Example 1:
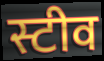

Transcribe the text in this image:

स्‍टीव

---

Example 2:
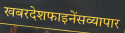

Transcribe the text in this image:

खबरदेशफाइनेंसव्यापार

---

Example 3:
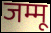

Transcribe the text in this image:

जम्मू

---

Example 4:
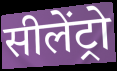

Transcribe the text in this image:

सीलेंट्रो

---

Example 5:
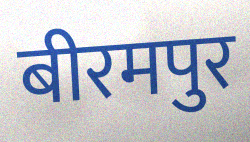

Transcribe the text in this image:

बीरमपुर